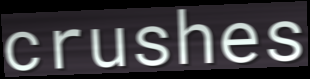
crushes